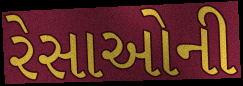
રેસાઓની